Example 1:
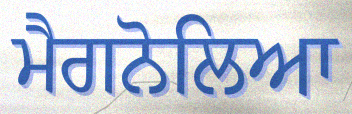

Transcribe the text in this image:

ਮੈਗਨੋਲਿਆ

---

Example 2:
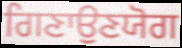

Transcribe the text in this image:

ਗਿਣਾਉਣਯੋਗ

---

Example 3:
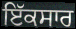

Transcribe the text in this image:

ਇੱਕਸਾਰ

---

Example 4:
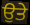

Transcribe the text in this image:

ਉਤੇ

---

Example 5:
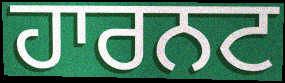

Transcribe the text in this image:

ਹਾਰਨਟ